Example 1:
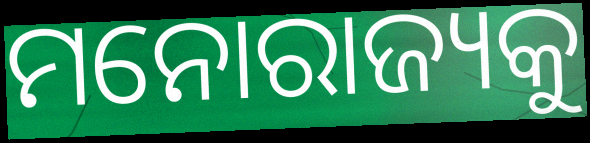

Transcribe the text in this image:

ମନୋରାଜ୍ୟକୁ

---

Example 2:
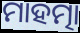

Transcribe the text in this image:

ମାହତ୍ମା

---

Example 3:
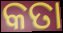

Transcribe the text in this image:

କତା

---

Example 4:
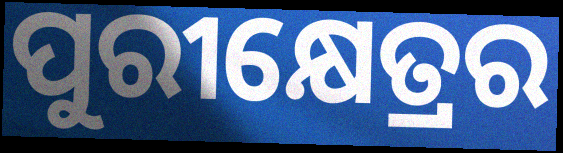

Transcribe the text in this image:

ପୁରୀକ୍ଷେତ୍ରର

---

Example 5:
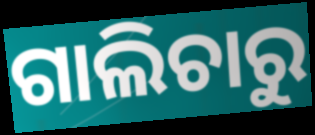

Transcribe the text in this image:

ଗାଲିଚାରୁ